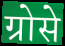
ग्रोसे